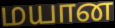
மயான